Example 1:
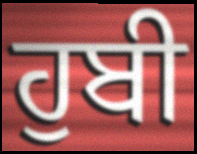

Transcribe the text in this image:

ਹੁਬੀ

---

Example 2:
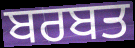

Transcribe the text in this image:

ਬਰਬਤ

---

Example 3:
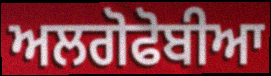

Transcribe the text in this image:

ਅਲਗੋਫੋਬੀਆ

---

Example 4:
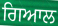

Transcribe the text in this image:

ਗਿਆਲ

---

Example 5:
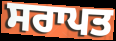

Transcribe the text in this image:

ਸਰਾਪਤ